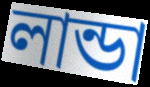
লান্ডা